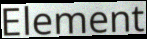
Element